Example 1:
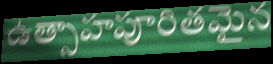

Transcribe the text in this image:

ఉత్సాహపూరితమైన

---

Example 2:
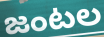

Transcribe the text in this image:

జంటల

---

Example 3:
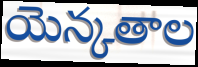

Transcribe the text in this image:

యెన్కతాల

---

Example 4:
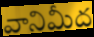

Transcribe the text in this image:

వానిమీద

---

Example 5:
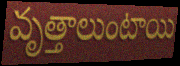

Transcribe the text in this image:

వృత్తాలుంటాయి